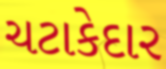
ચટાકેદાર